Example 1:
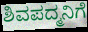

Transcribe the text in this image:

ಶಿವಪದ್ಮನಿಗೆ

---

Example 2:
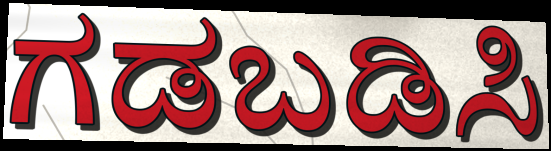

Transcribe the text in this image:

ಗಡಬಡಿಸಿ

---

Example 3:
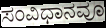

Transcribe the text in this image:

ಸಂವಿಧಾನವೂ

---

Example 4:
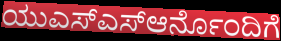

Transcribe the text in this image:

ಯುಎಸ್ಎಸ್ಆರ್ನೊಂದಿಗೆ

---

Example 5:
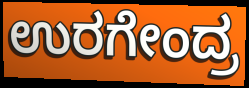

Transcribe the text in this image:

ಉರಗೇಂದ್ರ